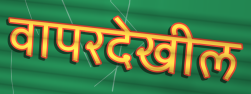
वापरदेखील